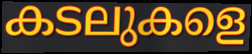
കടലുകളെ